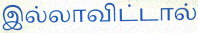
இல்லாவிட்டால்